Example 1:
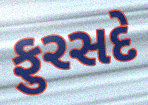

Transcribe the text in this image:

ફુરસદે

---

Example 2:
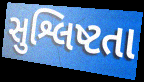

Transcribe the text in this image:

સુશ્લિષ્ટતા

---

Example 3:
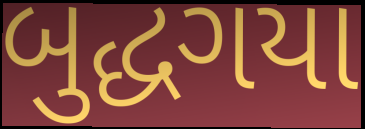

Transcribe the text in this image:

બુદ્ધગયા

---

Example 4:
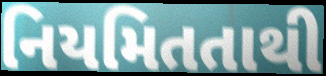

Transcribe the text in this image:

નિયમિતતાથી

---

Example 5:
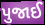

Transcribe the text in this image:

પુજાઈ